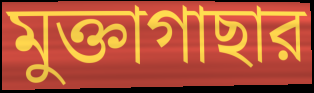
মুক্তাগাছার